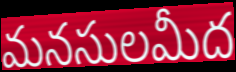
మనసులమీద